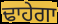
ਢਾਹੇਗਾ